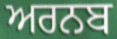
ਅਰਨਬ